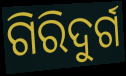
ଗିରିଦୁର୍ଗ